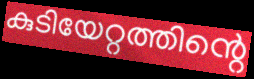
കുടിയേറ്റത്തിന്റെ